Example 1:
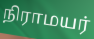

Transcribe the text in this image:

நிராமயர்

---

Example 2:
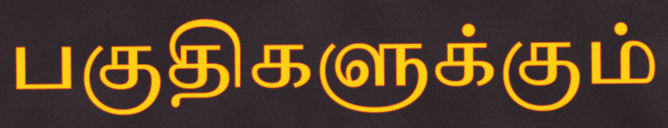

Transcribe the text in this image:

பகுதிகளுக்கும்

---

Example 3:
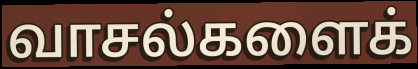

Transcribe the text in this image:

வாசல்களைக்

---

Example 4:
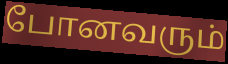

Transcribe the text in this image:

போனவரும்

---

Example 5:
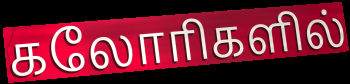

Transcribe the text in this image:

கலோரிகளில்